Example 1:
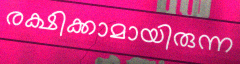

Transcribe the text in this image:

രക്ഷിക്കാമായിരുന്ന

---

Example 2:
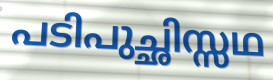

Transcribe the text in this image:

പടിപുച്ഛിസ്സഥ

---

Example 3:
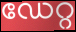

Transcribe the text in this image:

ഡേറ്റ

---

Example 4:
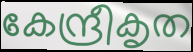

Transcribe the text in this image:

കേന്ദ്രീകൃത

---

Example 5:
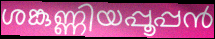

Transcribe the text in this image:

ശങ്കുണ്ണിയപ്പൂപ്പൻ